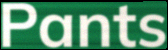
Pants